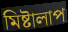
মিষ্টালাপ